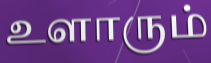
உளாரும்